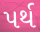
પર્થ